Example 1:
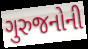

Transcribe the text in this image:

ગુરુજનોની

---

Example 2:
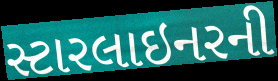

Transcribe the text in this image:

સ્ટારલાઇનરની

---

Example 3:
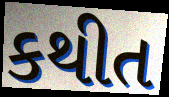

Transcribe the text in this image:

કથીત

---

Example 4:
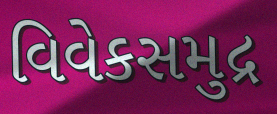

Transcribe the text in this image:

વિવેકસમુદ્ર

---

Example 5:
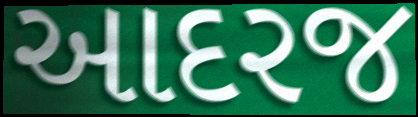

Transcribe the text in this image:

આદરજ